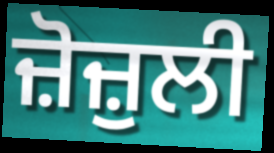
ਜ਼ੋਜ਼ੁਲੀ